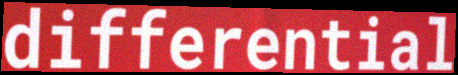
differential